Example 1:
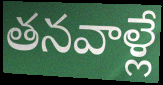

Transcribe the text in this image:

తనవాళ్లే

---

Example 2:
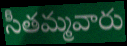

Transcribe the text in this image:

సీతమ్మవారు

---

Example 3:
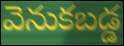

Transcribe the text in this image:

వెనుకబడ్డ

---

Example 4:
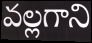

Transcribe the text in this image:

వల్లగాని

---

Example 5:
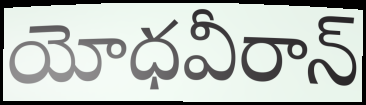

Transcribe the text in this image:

యోధవీరాన్